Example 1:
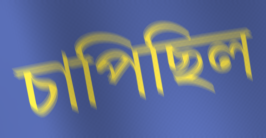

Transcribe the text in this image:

চাপিছিল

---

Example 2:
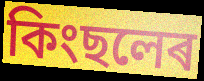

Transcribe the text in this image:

কিংছলেৰ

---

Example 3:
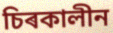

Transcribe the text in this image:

চিৰকালীন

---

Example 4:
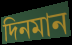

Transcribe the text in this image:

দিনমান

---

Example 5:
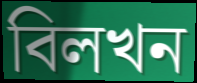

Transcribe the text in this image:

বিলখন